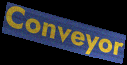
Conveyor